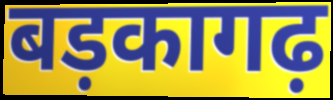
बड़कागढ़